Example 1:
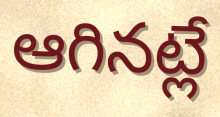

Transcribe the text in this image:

ఆగినట్లే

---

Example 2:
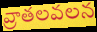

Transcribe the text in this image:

వ్రాతలవలన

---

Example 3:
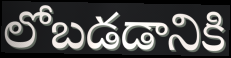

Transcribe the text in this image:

లోబడడానికి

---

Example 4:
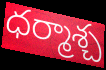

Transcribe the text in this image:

ధర్మాశ్చ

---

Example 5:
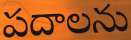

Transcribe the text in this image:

పదాలను